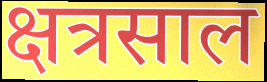
क्षत्रसाल